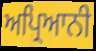
ਅਪ੍ਰਿਆਨੀ